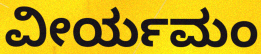
ವೀರ್ಯಮಂ